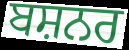
ਬਸ਼ਨਰ